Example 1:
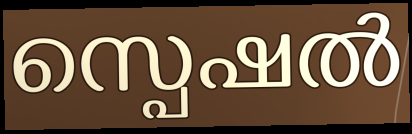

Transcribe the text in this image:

സ്പെഷൽ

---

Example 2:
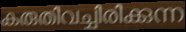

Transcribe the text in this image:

കരുതിവച്ചിരിക്കുന്ന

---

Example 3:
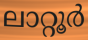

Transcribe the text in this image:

ലാറ്റൂർ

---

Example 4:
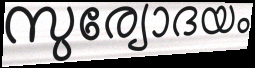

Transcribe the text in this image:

സുര്യോദയം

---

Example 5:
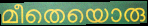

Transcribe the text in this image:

മീതെയൊരു